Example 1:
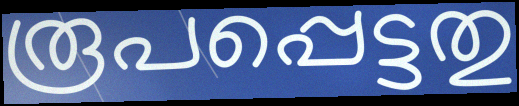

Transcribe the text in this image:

രൂപപ്പെട്ടതു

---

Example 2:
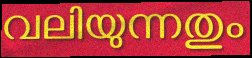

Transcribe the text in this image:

വലിയുന്നതും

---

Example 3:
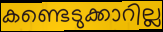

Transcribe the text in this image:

കണ്ടെടുക്കാറില്ല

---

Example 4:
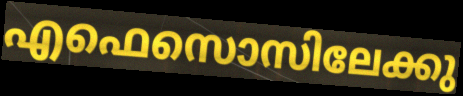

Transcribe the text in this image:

എഫെസൊസിലേക്കു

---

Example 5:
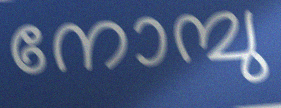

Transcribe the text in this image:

നോമ്പു